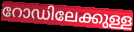
റോഡിലേക്കുള്ള